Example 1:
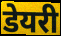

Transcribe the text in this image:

डेयरी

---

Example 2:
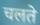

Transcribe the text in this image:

चलते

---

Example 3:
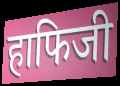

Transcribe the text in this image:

हाफिजी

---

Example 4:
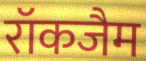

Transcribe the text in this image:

रॉकजैम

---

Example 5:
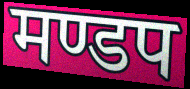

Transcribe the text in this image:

मण्‍डप